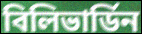
বিলিভার্ডিন